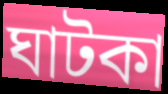
ঘাটকা